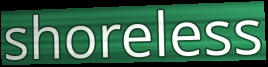
shoreless